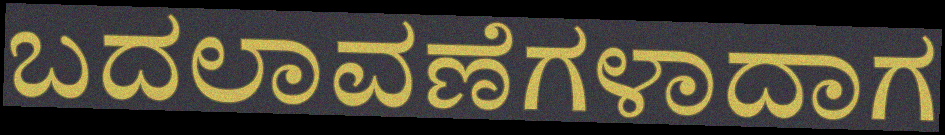
ಬದಲಾವಣೆಗಳಾದಾಗ